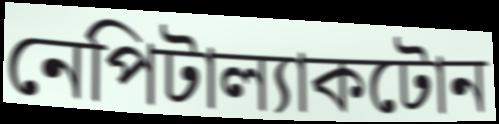
নেপিটাল্যাকটোন